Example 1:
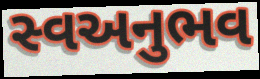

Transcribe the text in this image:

સ્વઅનુભવ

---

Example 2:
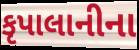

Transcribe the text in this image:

કૃપાલાનીના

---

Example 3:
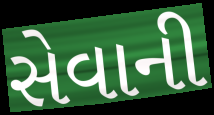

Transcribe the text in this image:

સેવાની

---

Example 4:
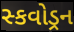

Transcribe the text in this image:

સ્કવોડ્રન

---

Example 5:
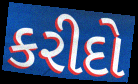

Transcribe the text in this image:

કરીદો